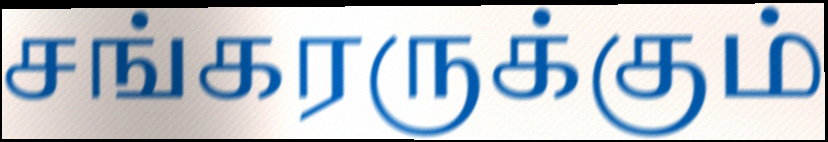
சங்கரருக்கும்